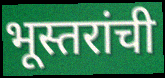
भूस्तरांची